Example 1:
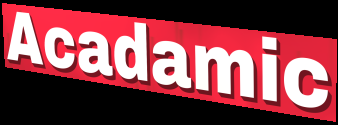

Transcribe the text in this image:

Acadamic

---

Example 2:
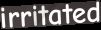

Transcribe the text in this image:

irritated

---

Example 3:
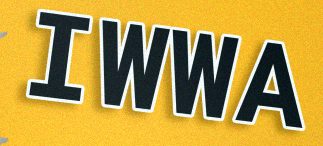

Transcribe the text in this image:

IWWA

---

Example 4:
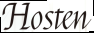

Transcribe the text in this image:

Hosten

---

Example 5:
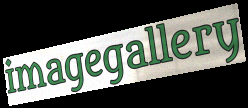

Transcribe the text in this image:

imagegallery